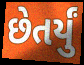
છેતર્યું